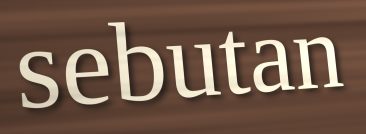
sebutan